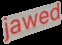
jawed